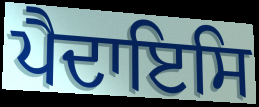
ਪੈਦਾਇਸਿ